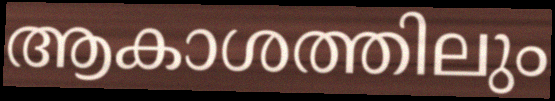
ആകാശത്തിലും